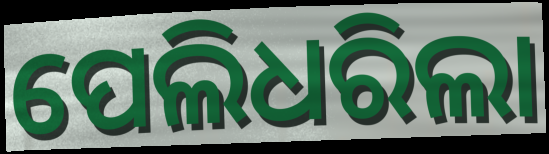
ପେଲିଧରିଲା